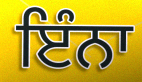
ਇੰਨਾ